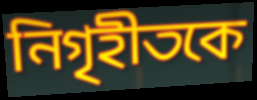
নিগৃহীতকে